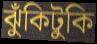
ঝুঁকিটুকি